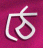
ঠে